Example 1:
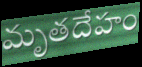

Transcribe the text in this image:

మృతదేహం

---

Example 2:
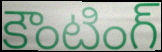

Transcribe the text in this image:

కౌంటింగ్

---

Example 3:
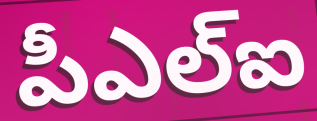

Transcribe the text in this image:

పీఎల్ఐ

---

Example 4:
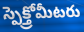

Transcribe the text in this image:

స్పెక్త్రోమీటరు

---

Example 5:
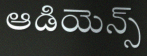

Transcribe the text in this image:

ఆడియెన్స్